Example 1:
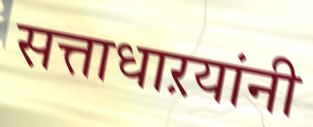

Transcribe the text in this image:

सत्ताधाऱयांनी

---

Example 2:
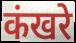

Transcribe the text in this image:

कंखरे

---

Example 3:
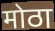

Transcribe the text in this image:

मोठा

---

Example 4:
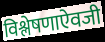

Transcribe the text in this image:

विश्लेषणाऐवजी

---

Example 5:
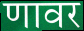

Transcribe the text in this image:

णावर